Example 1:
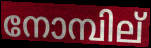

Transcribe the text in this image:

നോമ്പില്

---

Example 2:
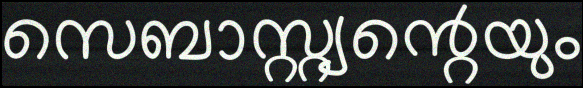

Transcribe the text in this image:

സെബാസ്റ്റ്യന്റെയും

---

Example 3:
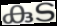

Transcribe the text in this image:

കുട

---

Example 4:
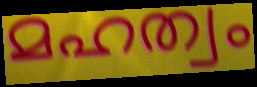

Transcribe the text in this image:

മഹത്വം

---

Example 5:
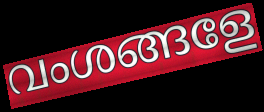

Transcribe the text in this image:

വംശങ്ങളേ